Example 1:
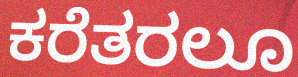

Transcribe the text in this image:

ಕರೆತರಲೂ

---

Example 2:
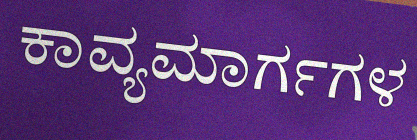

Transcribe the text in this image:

ಕಾವ್ಯಮಾರ್ಗಗಳ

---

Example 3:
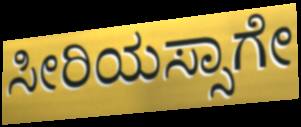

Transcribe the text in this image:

ಸೀರಿಯಸ್ಸಾಗೇ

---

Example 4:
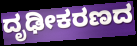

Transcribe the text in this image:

ದೃಢೀಕರಣದ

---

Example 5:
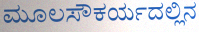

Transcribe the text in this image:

ಮೂಲಸೌಕರ್ಯದಲ್ಲಿನ